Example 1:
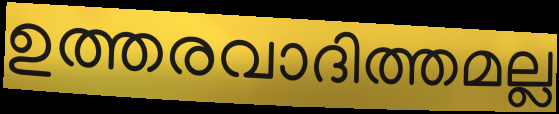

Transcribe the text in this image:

ഉത്തരവാദിത്തമല്ല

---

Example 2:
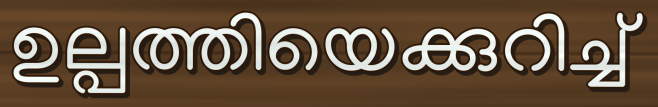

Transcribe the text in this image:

ഉല്പത്തിയെക്കുറിച്ച്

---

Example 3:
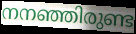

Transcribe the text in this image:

നനഞ്ഞിരുണ്ട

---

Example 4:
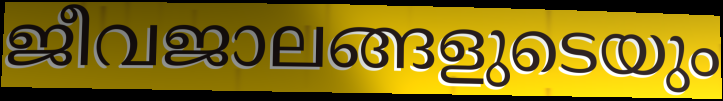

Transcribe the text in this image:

ജീവജാലങ്ങളുടെയും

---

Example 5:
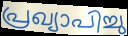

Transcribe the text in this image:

പ്രഖ്യാപിച്ചു